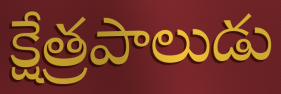
క్షేత్రపాలుడు